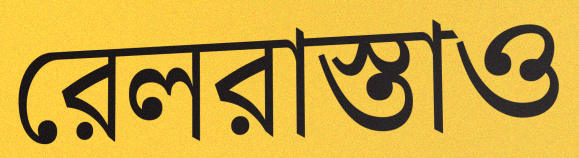
রেলরাস্তাও